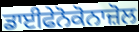
ਡਾਈਫੇਨੋਕੋਨਾਜ਼ੋਲ